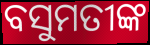
ବସୁମତୀଙ୍କ